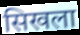
सिखला